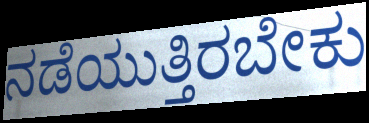
ನಡೆಯುತ್ತಿರಬೇಕು